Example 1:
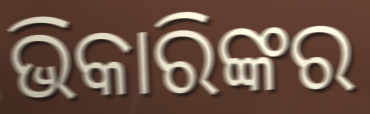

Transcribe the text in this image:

ଭିକାରିଙ୍କର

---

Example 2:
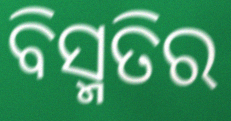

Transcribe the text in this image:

ବିସ୍ମତିର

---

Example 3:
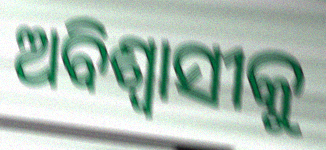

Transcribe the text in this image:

ଅବିଶ୍ୱାସୀକୁ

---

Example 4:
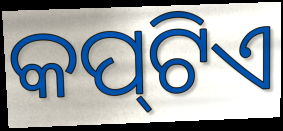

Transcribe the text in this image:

କପ୍‍ଟିଏ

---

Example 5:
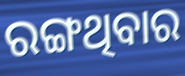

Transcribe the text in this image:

ରଙ୍ଗଥିବାର